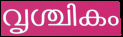
വൃശ്ചികം